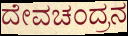
ದೇವಚಂದ್ರನ